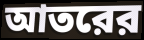
আতরের